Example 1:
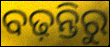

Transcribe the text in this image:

ବଢ଼ନ୍ତିରୁ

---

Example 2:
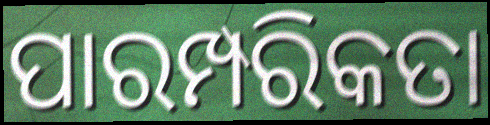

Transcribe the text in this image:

ପାରମ୍ପରିକତା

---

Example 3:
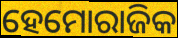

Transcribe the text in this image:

ହେମୋରାଜିକ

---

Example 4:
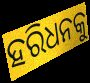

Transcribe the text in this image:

ହରିଧନକୁ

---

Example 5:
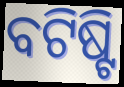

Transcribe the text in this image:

ବଟିଷ୍ଟି